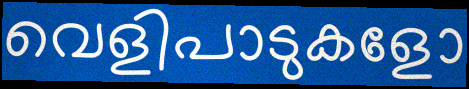
വെളിപാടുകളോ